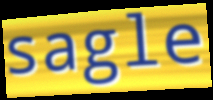
sagle